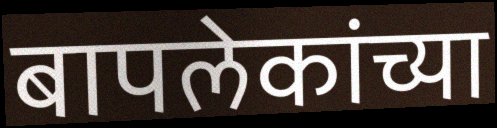
बापलेकांच्या